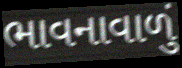
ભાવનાવાળું